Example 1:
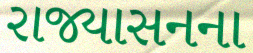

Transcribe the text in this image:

રાજ્યાસનના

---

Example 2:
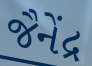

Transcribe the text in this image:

જૈનેંદ્ર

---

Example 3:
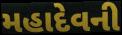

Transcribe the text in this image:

મહાદેવની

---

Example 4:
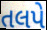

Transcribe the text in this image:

તલપે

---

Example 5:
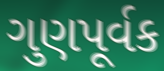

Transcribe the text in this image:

ગુણપૂર્વક